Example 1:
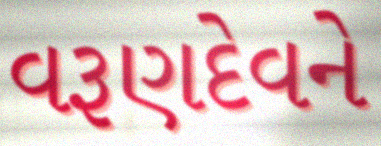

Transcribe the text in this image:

વરૂણદેવને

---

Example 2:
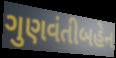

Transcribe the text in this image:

ગુણવંતીબહેન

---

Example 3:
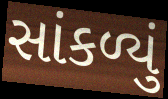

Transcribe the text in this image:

સાંકળ્યું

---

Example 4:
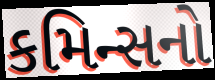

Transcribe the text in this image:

કમિન્સનો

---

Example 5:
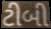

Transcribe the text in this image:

ટીબી